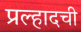
प्रल्हादची